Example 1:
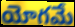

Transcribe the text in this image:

యోగమే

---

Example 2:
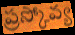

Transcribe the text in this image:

ప్రస్కోవ్య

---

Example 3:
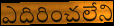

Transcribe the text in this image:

ఎదిరించలేని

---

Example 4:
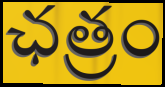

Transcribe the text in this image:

ఛత్రం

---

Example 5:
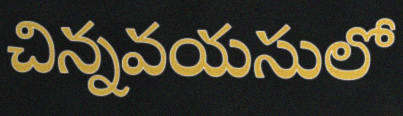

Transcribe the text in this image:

చిన్నవయసులో